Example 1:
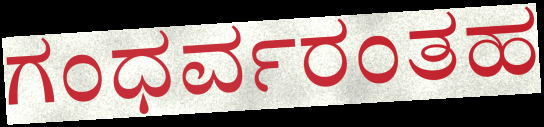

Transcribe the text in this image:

ಗಂಧರ್ವರಂತಹ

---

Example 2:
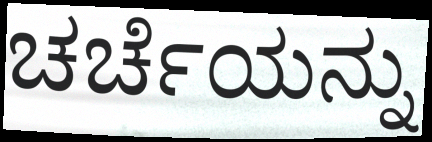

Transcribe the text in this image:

ಚರ್ಚೆಯನ್ನು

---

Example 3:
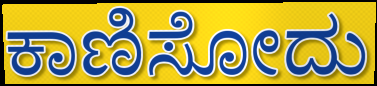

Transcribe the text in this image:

ಕಾಣಿಸೋದು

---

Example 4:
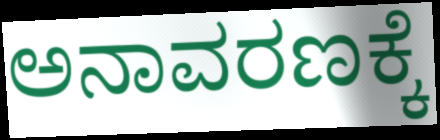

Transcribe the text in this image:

ಅನಾವರಣಕ್ಕೆ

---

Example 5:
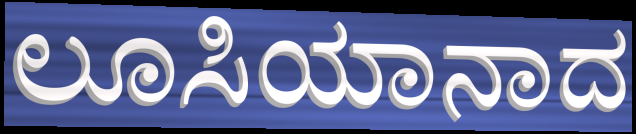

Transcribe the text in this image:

ಲೂಸಿಯಾನಾದ